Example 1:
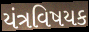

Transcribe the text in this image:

યંત્રવિષયક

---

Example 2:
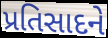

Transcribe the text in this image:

પ્રતિસાદને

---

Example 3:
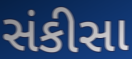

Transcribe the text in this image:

સંકીસા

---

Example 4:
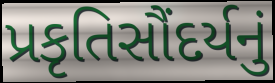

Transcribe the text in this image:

પ્રકૃતિસૌંદર્યનું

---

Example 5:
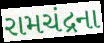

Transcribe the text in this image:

રામચંદ્રના